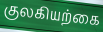
குலகியற்கை